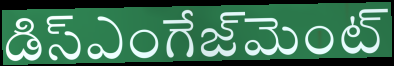
డిస్ఎంగేజ్‌మెంట్